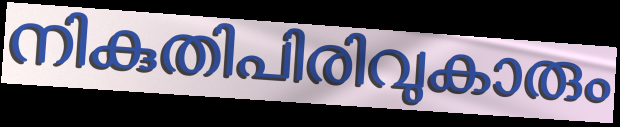
നികുതിപിരിവുകാരും